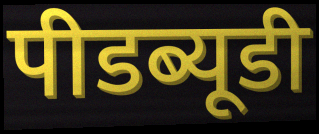
पीडब्यूडी